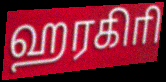
ஹரகிரி